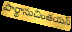
పార్థానుచింతయన్